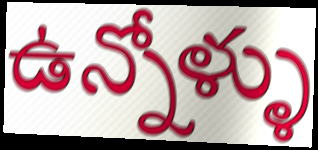
ఉన్నోళ్ళు